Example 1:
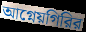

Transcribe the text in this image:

আগ্নেয়গিরির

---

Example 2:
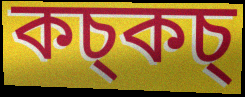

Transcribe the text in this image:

কচ্কচ্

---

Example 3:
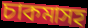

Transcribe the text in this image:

চাকমাসহ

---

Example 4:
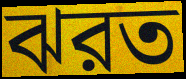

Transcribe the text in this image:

ঝরত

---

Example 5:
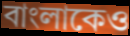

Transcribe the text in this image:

বাংলাকেও